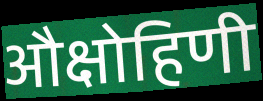
औक्षोहिणी